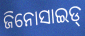
ଜିନୋସାଇଡ୍